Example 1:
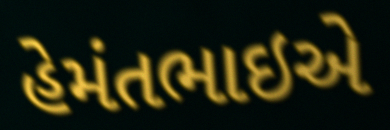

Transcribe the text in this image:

હેમંતભાઇએ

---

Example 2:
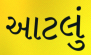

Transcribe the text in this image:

આટલું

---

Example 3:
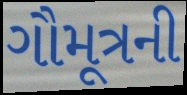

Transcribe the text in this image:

ગૌમૂત્રની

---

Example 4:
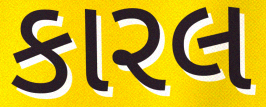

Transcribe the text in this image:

કારલ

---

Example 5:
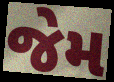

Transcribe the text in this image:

જેમ